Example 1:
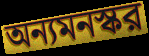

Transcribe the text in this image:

অন্যমনস্কর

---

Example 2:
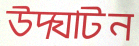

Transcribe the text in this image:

উদ্ঘাটন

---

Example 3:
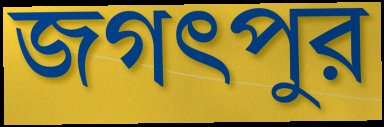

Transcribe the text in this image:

জগৎপুর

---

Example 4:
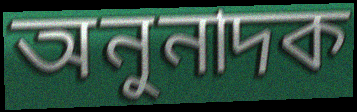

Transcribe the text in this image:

অনুনাদক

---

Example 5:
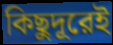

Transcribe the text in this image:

কিছুদূরেই